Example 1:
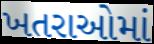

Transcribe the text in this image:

ખતરાઓમાં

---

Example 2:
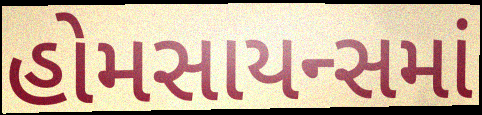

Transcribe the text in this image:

હોમસાયન્સમાં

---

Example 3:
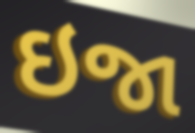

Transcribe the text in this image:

ઇજા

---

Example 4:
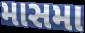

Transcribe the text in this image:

માસમા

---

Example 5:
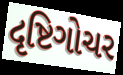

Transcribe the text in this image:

દૃષ્ટિગોચર